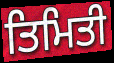
ਤਿਮਿਤੀ